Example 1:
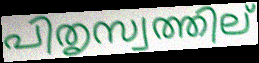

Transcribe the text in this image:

പിതൃസ്വത്തില്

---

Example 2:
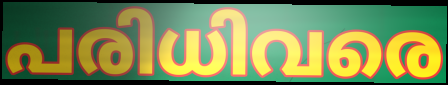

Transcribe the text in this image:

പരിധിവരെ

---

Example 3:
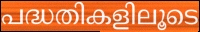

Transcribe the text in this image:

പദ്ധതികളിലൂടെ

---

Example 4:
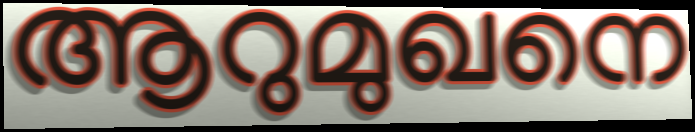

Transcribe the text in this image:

ആറുമുഖനെ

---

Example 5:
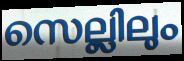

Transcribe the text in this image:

സെല്ലിലും